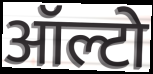
ऑल्टो